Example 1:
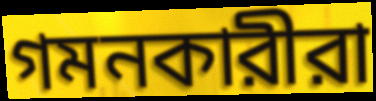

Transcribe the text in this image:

গমনকারীরা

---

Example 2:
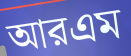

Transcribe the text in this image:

আরএম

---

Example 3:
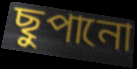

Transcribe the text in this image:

ছুপানো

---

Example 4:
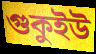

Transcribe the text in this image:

গুকুইউ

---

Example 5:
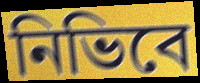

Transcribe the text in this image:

নিভিবে